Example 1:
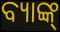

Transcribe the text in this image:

ବ୍ୟାଙ୍କ୍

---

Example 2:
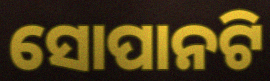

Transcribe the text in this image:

ସୋପାନଟି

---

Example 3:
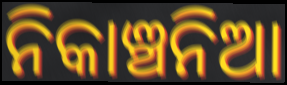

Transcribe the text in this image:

ନିକାଞ୍ଚନିଆ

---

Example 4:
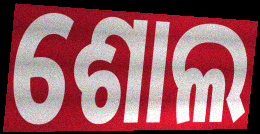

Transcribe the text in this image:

ଶୋଲ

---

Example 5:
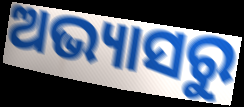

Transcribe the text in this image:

ଅଭ୍ୟାସରୁ